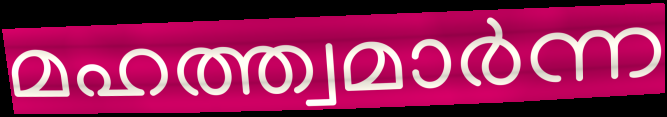
മഹത്ത്വമാർന്ന